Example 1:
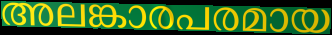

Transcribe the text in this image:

അലങ്കാരപരമായ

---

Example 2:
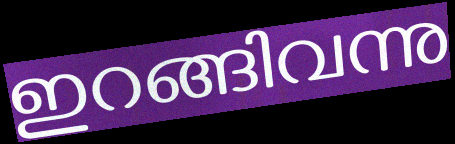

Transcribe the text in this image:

ഇറങ്ങിവന്നു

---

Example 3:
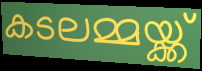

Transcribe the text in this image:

കടലമ്മയ്ക്ക്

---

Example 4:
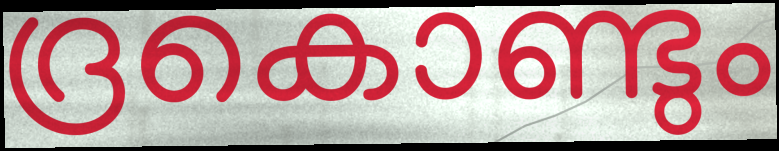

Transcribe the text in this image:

ദ്രകൊണ്ടും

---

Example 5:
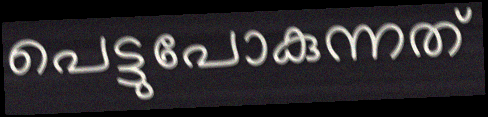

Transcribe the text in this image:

പെട്ടുപോകുന്നത്